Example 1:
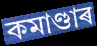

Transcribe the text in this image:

কমাণ্ডাৰ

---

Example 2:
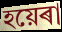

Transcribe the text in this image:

হয়েৰা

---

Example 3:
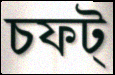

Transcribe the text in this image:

চফট্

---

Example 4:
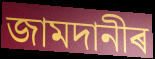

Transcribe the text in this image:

জামদানীৰ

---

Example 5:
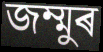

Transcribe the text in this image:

জম্মুৰ